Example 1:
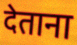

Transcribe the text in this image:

देताना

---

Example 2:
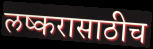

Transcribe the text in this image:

लष्करासाठीच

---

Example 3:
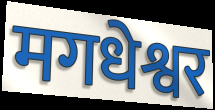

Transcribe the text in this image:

मगधेश्वर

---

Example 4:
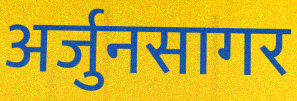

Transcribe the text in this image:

अर्जुनसागर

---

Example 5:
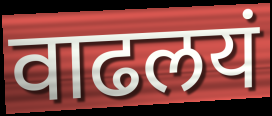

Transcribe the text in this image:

वाढलयं